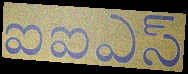
ఐఐఎస్